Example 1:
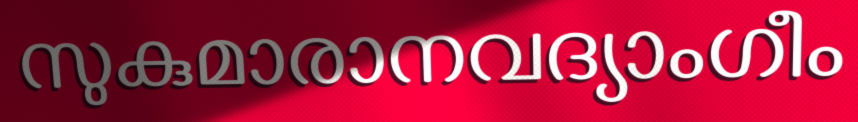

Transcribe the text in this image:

സുകുമാരാനവദ്യാംഗീം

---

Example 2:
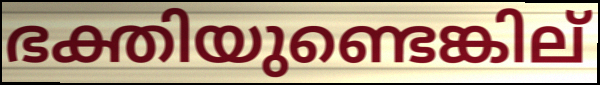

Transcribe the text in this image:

ഭക്തിയുണ്ടെങ്കില്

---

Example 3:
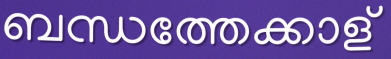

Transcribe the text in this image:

ബന്ധത്തേക്കാള്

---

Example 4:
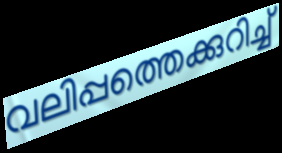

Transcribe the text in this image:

വലിപ്പത്തെക്കുറിച്ച്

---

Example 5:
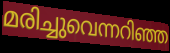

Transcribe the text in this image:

മരിച്ചുവെന്നറിഞ്ഞ